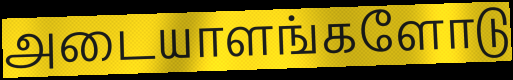
அடையாளங்களோடு